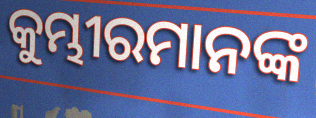
କୁମ୍ଭୀରମାନଙ୍କ